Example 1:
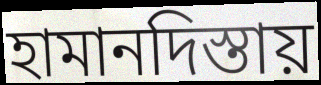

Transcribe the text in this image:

হামানদিস্তায়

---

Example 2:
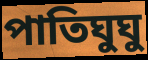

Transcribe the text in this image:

পাতিঘুঘু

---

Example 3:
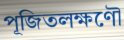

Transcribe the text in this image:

পূজিতলক্ষণৌ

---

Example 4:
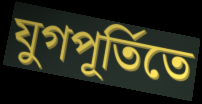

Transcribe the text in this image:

যুগপূর্তিতে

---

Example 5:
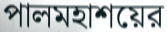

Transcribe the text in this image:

পালমহাশয়ের